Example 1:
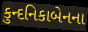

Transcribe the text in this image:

કુન્દનિકાબેનના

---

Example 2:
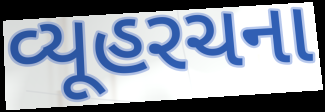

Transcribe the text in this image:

વ્યૂહરચના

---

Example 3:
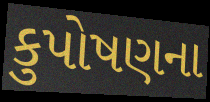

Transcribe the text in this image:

કુપોષણના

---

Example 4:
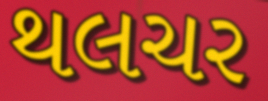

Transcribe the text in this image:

થલચર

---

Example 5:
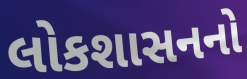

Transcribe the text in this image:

લોકશાસનનો